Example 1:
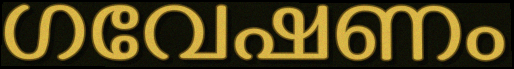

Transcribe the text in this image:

ഗവേഷണം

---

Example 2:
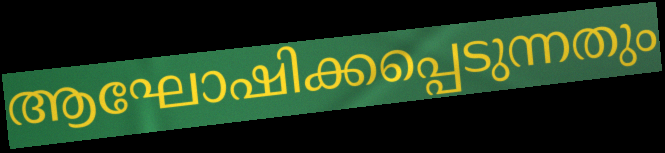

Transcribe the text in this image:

ആഘോഷിക്കപ്പെടുന്നതും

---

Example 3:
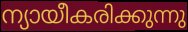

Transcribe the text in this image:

ന്യായീകരിക്കുന്നു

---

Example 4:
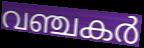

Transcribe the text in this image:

വഞ്ചകർ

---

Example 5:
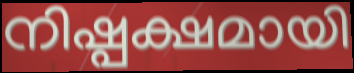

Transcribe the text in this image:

നിഷ്പക്ഷമായി